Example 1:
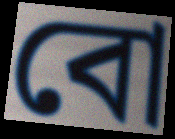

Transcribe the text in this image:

বো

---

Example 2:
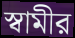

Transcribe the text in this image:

স্বামীর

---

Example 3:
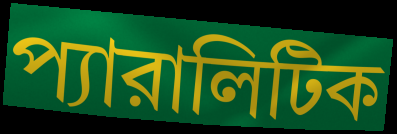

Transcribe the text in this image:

প্যারালিটিক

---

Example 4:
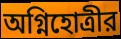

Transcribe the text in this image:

অগ্নিহোত্রীর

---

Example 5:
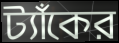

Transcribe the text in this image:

ট্যাঁকের